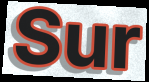
Sur